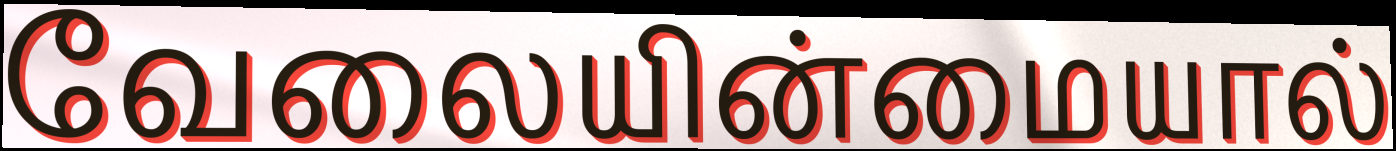
வேலையின்மையால்